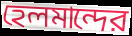
হেলমান্দের